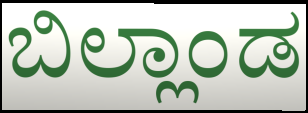
ಬಿಲ್ಲಾಂಡ